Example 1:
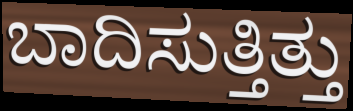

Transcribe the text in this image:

ಬಾದಿಸುತ್ತಿತ್ತು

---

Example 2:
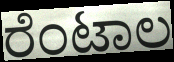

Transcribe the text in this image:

ರೆಂಟಾಲ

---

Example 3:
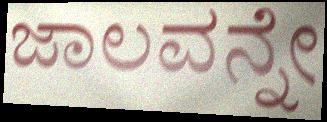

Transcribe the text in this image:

ಜಾಲವನ್ನೇ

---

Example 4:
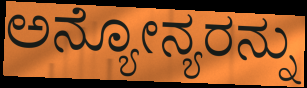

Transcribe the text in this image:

ಅನ್ಯೋನ್ಯರನ್ನು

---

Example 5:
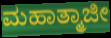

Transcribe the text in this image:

ಮಹಾತ್ಮಾಜೀ